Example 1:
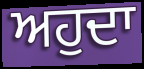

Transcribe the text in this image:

ਅਹੁਦਾ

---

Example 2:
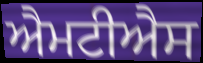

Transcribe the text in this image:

ਐਮਟੀਐਸ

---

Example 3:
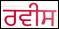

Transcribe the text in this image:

ਰਵੀਸ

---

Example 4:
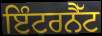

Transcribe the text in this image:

ਇੰਟਰਨੈੱਟ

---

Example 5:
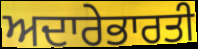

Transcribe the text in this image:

ਅਦਾਰੇਭਾਰਤੀ